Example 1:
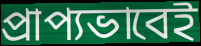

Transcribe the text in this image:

প্রাপ্যভাবেই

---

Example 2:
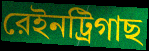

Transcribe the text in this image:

রেইনট্রিগাছ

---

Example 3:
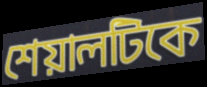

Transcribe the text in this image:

শেয়ালটিকে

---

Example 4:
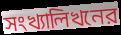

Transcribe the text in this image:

সংখ্যালিখনের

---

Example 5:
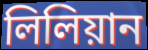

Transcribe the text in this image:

লিলিয়ান